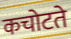
कचोटते